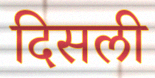
दिसली